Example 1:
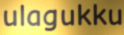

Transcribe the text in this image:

ulagukku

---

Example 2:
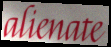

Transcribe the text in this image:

alienate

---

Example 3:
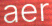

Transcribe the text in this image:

aer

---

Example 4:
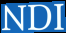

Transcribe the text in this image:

NDI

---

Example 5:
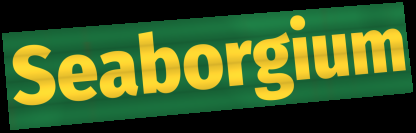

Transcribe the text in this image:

Seaborgium